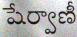
షేర్వాణీ